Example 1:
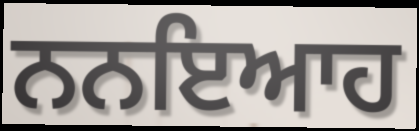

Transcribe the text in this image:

ਨਨਇਆਹ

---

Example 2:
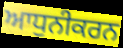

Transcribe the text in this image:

ਆਧੁਨੀਕਰਨ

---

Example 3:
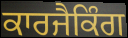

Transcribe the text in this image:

ਕਾਰਜੈਕਿੰਗ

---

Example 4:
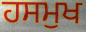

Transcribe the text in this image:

ਹਸਮੁਖ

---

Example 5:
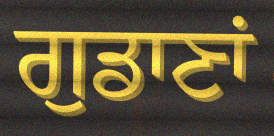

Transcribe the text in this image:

ਗੁਡਾਣਾਂ